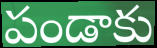
పండాకు